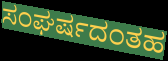
ಸಂಘರ್ಷದಂತಹ